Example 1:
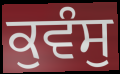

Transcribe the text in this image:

ਕੁਵੰਸੁ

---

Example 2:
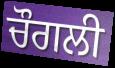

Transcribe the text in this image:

ਚੌਗਲੀ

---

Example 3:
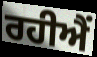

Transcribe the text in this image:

ਰਹੀਐਂ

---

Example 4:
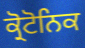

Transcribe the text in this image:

ਕ੍ਰੋਟੋਨਿਕ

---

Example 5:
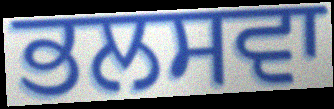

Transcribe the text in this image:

ਭਲਸਵਾ